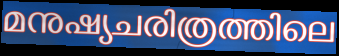
മനുഷ്യചരിത്രത്തിലെ